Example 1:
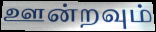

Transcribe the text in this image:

ஊன்றவும்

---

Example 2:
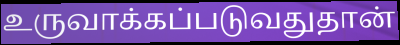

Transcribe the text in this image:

உருவாக்கப்படுவதுதான்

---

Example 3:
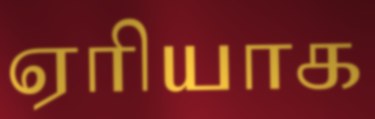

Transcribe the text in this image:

ஏரியாக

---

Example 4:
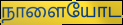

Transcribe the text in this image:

நாளையோட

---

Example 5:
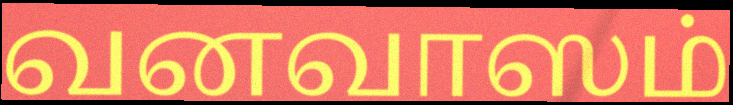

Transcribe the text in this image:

வனவாஸம்